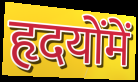
हृदयोंमें